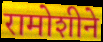
रामोशीने